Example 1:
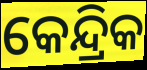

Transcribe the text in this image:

କେନ୍ଦ୍ରିକ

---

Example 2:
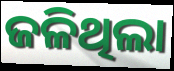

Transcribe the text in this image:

ଜଳିଥିଲା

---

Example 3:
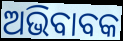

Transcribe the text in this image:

ଅଭିବାବକ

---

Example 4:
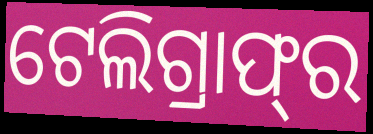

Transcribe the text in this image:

ଟେଲିଗ୍ରାଫ୍‌ର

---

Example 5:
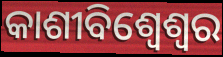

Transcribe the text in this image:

କାଶୀବିଶ୍ୱେଶ୍ୱର